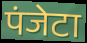
पंजेटा